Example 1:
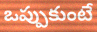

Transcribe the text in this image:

ఒప్పుకుంటే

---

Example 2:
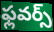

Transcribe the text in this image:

ఫ్లవర్స్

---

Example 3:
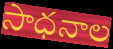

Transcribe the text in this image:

సాధనాల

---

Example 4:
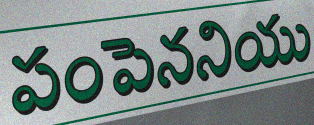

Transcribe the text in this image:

పంపెననియు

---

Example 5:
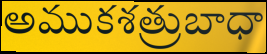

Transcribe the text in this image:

అముకశత్రుబాధా